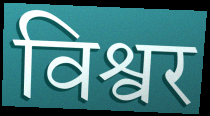
विश्वर